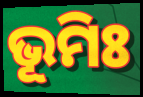
ଭୂମିଃ